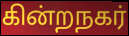
கின்றநகர்